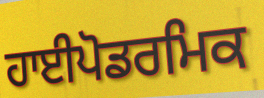
ਹਾਈਪੋਡਰਮਿਕ